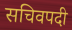
सचिवपदी